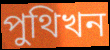
পুথিখন